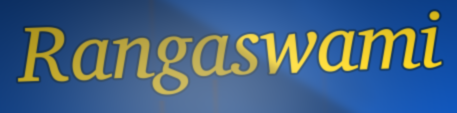
Rangaswami